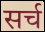
सर्च